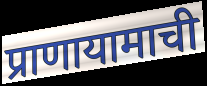
प्राणायामाची